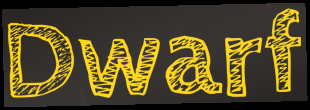
Dwarf